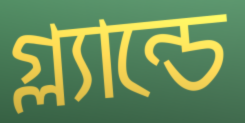
গ্ল্যান্ডে